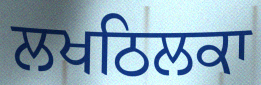
ਲਖਠਿਲਕਾ